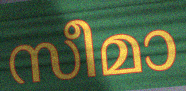
സീമാ